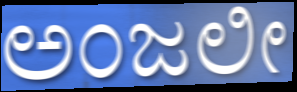
ಅಂಜಲೀ